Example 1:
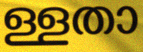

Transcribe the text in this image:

ള്ളതാ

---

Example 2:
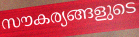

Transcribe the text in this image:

സൗകര്യങ്ങളുടെ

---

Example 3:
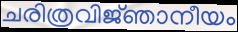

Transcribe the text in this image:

ചരിത്രവിജ്‌ഞാനീയം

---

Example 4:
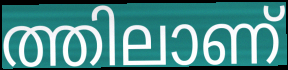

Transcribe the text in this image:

ത്തിലാണ്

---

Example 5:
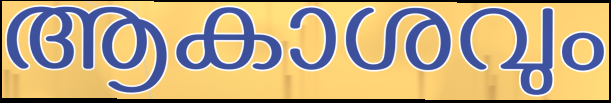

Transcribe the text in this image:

ആകാശവും